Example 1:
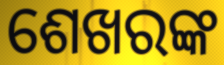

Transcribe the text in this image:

ଶେଖରଙ୍କ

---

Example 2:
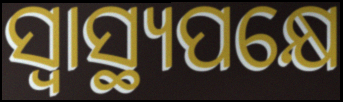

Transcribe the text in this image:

ସ୍ଵାସ୍ଥ୍ୟପକ୍ଷେ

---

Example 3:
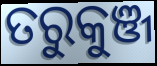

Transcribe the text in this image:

ତରୁକୁଞ୍ଜ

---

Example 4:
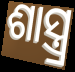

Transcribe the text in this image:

ଶାସ୍ତ୍ର୍ର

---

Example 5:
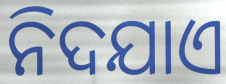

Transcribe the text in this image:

ନିଦଯାଏ